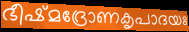
ഭീഷ്മദ്രോണകൃപാദയഃ